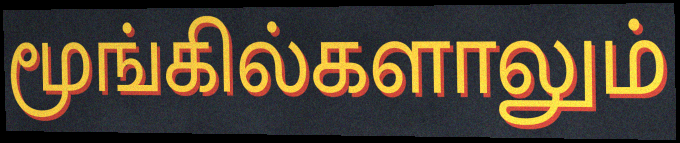
மூங்கில்களாலும்